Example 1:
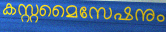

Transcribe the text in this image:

കസ്റ്റമൈസേഷനും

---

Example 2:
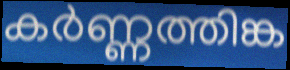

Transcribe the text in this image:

കർണ്ണത്തിങ്ക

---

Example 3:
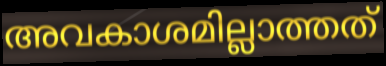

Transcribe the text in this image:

അവകാശമില്ലാത്തത്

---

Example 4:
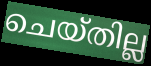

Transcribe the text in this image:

ചെയ്തില്ല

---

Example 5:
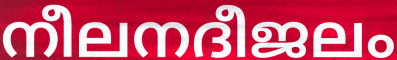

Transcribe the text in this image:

നീലനദീജലം